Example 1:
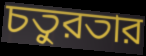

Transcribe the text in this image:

চতুরতার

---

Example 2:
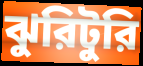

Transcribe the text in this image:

ঝুরিটুরি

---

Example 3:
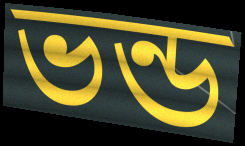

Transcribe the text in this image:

ভন্ড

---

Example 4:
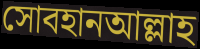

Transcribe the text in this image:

সোবহানআল্লাহ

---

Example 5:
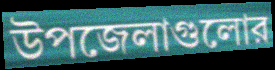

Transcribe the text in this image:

উপজেলাগুলোর